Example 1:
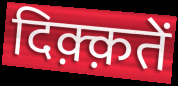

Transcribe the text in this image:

दिक़्क़तें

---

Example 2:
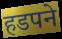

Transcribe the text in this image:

हडपने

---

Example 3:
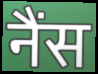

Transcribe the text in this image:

नैंस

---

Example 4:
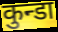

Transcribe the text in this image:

कुन्डा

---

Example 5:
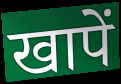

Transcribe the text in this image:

खापें